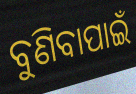
ବୁଣିବାପାଇଁ